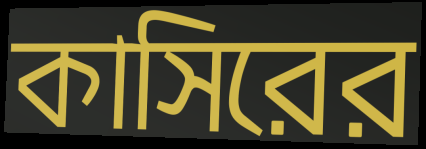
কাসিরের